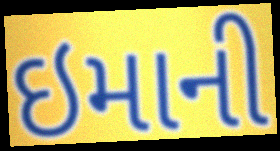
ઇમાની